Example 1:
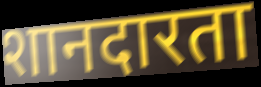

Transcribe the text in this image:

शानदारता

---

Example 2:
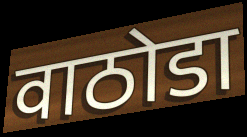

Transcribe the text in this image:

वाठोडा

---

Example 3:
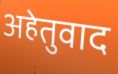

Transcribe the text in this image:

अहेतुवाद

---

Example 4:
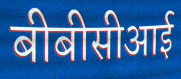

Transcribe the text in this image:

बीबीसीआई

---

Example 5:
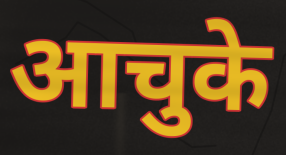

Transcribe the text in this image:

आचुके